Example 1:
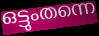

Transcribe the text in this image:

ഒട്ടുംതന്നെ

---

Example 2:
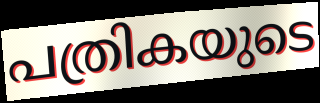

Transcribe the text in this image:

പത്രികയുടെ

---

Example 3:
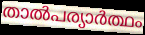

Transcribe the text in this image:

താൽപര്യാർത്ഥം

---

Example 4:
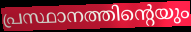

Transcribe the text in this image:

പ്രസ്ഥാനത്തിന്റെയും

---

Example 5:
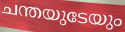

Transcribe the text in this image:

ചന്തയുടേയും